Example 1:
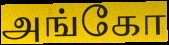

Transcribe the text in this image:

அங்கோ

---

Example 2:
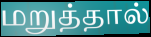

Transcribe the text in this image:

மறுத்தால்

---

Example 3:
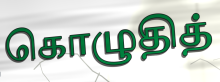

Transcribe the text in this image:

கொழுதித்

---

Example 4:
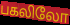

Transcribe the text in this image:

பகலிலோ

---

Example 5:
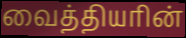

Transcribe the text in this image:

வைத்தியரின்